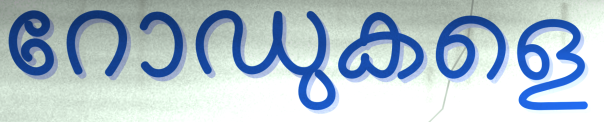
റോഡുകളെ